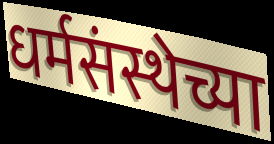
धर्मसंस्थेच्या